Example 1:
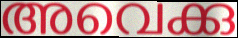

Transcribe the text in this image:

അവെക്കു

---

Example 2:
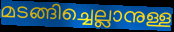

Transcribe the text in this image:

മടങ്ങിച്ചെല്ലാനുള്ള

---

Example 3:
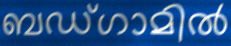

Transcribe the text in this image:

ബഡ്ഗാമിൽ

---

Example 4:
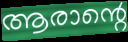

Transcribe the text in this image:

ആരാന്റെ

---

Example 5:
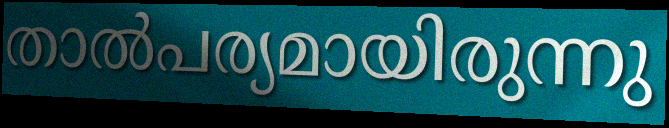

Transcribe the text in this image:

താൽപര്യമായിരുന്നു